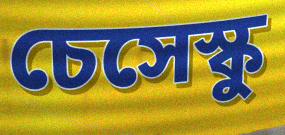
চেসেস্কু